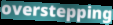
overstepping